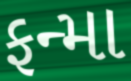
ફન્મા